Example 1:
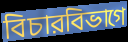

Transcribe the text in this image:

বিচারবিভাগে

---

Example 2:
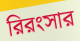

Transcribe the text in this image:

রিরংসার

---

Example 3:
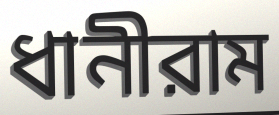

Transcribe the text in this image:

ধানীরাম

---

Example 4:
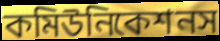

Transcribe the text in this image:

কমিউনিকেশনস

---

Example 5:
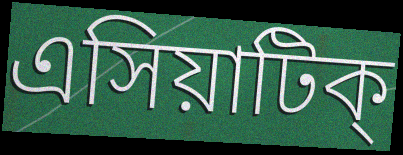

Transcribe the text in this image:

এসিয়াটিক্